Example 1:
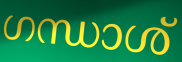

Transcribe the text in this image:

ഗന്ധാശ്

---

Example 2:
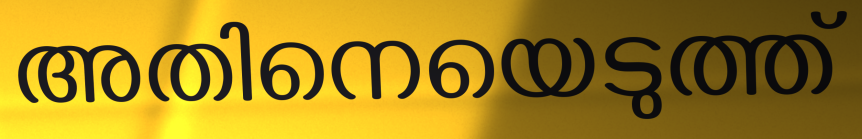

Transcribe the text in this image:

അതിനെയെടുത്ത്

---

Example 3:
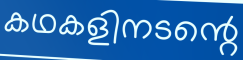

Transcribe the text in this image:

കഥകളിനടന്റെ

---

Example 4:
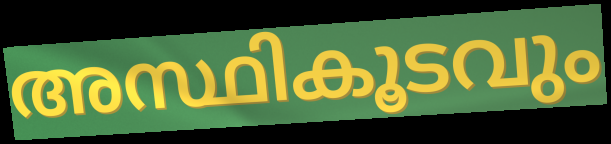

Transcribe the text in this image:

അസ്ഥികൂടവും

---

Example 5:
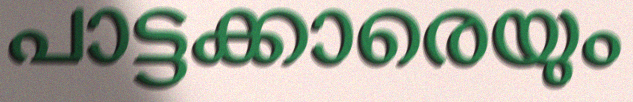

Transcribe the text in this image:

പാട്ടക്കാരെയും